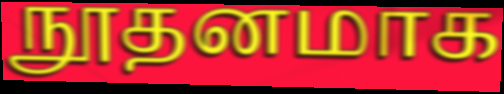
நூதனமாக